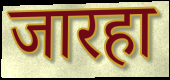
जारहा